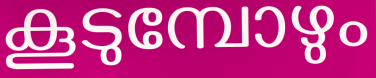
കൂടുമ്പോഴും